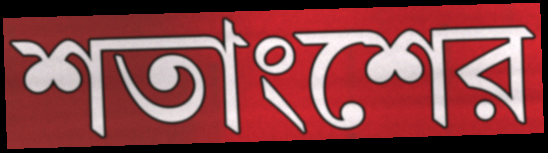
শতাংশের